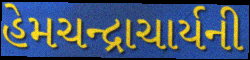
હેમચન્દ્રાચાર્યની